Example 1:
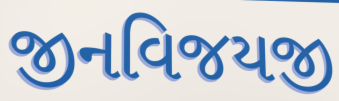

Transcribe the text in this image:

જીનવિજયજી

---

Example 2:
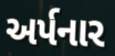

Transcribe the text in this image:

અર્પનાર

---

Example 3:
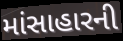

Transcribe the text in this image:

માંસાહારની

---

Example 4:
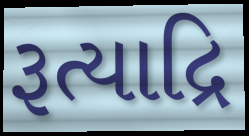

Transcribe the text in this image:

રૂત્યાદ્રિ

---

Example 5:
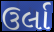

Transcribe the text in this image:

ઉર્લા